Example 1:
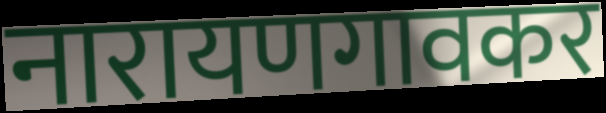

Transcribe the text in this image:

नारायणगावकर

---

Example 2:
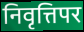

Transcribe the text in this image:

निवृत्तिपर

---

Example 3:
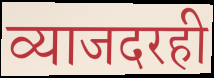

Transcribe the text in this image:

व्याजदरही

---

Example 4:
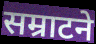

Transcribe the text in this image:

सम्राटने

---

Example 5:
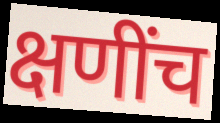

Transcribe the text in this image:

क्षणींच